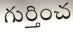
గుర్తించ